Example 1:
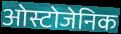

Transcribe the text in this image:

ओस्टोजेनिक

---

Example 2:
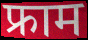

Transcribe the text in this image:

फ्राम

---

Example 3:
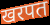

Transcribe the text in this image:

खरपत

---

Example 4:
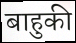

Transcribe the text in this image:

बाहुकी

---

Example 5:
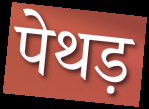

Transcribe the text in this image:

पेथड़